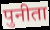
पुनीता